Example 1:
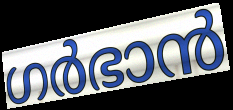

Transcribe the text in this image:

ഗർഭാൻ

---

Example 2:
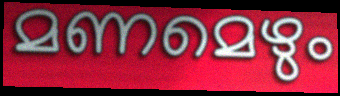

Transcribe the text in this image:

മണമെഴും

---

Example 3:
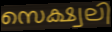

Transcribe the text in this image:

സെക്ഷ്വലി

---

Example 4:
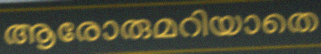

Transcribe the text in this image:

ആരോരുമറിയാതെ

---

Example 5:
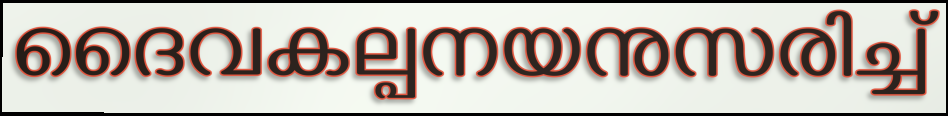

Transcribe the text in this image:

ദൈവകല്പനയനുസരിച്ച്